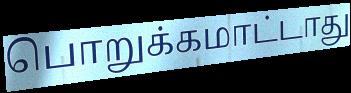
பொறுக்கமாட்டாது